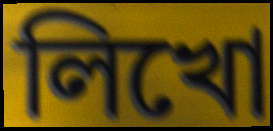
লিখো